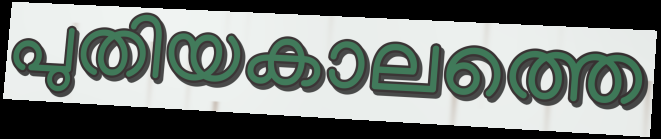
പുതിയകാലത്തെ